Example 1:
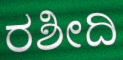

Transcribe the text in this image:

ರಶೀದಿ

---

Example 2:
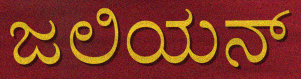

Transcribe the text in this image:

ಜಲಿಯನ್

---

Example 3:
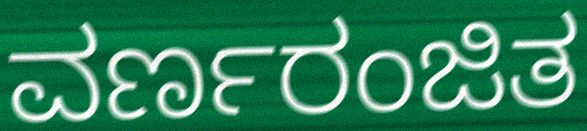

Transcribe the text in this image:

ವರ್ಣರಂಜಿತ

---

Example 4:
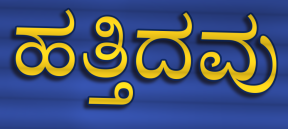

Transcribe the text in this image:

ಹತ್ತಿದವು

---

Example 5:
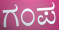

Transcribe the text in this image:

ಗಂಪ